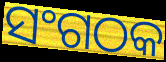
ସଂଗଠକ